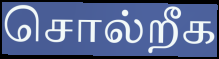
சொல்றீக